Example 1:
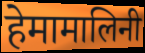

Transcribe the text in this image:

हेमामालिनी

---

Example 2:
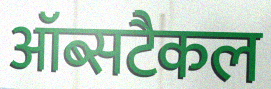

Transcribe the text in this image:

ऑब्सटैकल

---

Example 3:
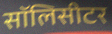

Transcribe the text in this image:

सॉलिसीटर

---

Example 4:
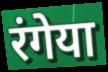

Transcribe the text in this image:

रंगेया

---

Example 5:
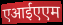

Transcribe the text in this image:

एआईएएम